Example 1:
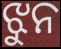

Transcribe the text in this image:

ଝୁନ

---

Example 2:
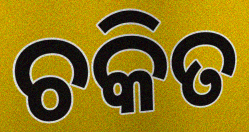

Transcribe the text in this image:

ଚକିତ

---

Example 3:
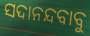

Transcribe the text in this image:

ସଦାନନ୍ଦବାବୁ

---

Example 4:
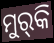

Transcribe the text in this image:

ମୁର୍‌କି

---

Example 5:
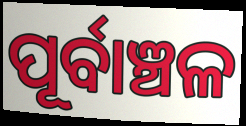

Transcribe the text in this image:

ପୂର୍ବାଞ୍ଚଳ